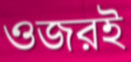
ওজরই